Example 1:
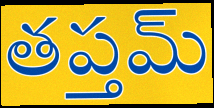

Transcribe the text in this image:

తప్తమ్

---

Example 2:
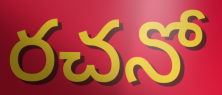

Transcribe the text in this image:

రచనో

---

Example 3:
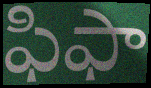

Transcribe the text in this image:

ఫిఫా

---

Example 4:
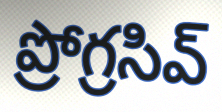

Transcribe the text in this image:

ప్రోగ్రసివ్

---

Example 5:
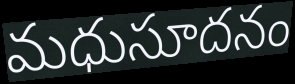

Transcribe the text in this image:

మధుసూదనం